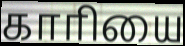
காரியை